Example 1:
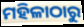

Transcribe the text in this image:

ମହିଳାଠାରୁ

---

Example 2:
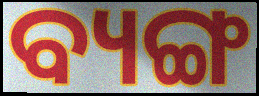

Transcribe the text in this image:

ବ୍ୟଙ୍ଗ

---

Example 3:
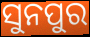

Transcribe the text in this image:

ସୁନପୁର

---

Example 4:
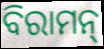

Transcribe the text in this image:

ବିରାମନ୍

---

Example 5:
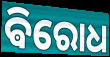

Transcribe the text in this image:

ଵିରୋଧ